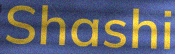
Shashi